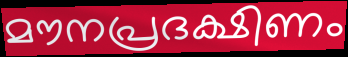
മൗനപ്രദക്ഷിണം